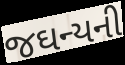
જઘન્યની